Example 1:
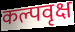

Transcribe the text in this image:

कल्‍पवृक्ष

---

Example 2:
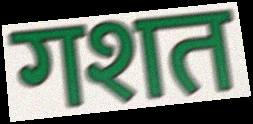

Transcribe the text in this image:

गशत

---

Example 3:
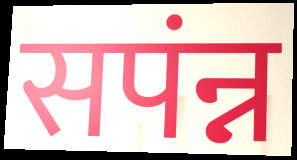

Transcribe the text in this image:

सपंन्न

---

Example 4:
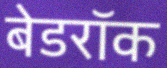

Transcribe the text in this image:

बेडरॉक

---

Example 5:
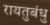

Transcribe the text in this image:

रायतुबंधु